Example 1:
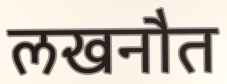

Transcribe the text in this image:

लखनौत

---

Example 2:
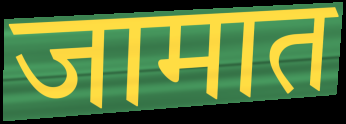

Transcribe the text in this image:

जामात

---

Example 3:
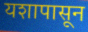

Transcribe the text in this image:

यशापासून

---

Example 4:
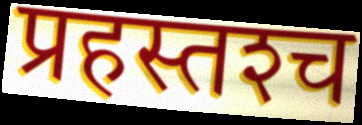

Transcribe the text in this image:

प्रहस्तश्च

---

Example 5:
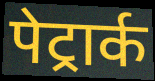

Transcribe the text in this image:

पेट्रार्क